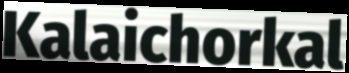
Kalaichorkal